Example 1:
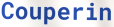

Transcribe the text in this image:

Couperin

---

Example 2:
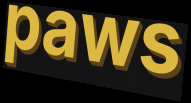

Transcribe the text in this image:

paws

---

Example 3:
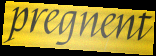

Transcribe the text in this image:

pregnent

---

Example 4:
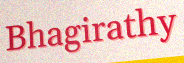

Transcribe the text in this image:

Bhagirathy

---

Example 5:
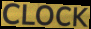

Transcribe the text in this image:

CLOCK